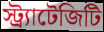
স্ট্র্যাটেজিটি